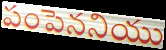
పంపెననియు